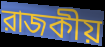
রাজকীয়